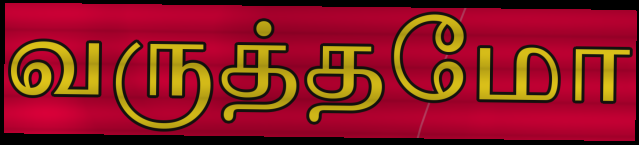
வருத்தமோ